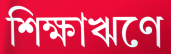
শিক্ষাঋণে